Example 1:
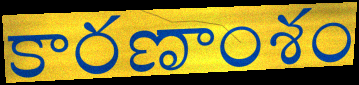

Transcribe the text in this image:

కారణాంశం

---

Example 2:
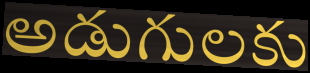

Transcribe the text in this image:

అడుగులకు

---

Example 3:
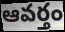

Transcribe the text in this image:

ఆవర్తం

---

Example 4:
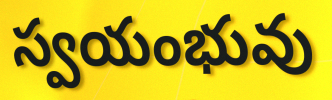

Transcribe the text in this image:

స్వయంభువు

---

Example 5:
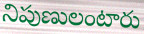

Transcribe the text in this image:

నిపుణులంటారు